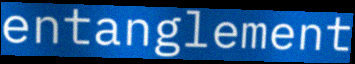
entanglement